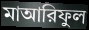
মাআরিফুল